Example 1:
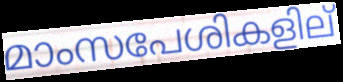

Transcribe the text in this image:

മാംസപേശികളില്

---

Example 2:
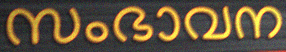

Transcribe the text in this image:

സംഭാവന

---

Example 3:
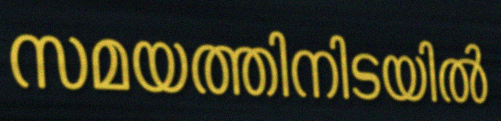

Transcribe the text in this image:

സമയത്തിനിടയിൽ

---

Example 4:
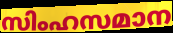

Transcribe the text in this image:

സിംഹസമാന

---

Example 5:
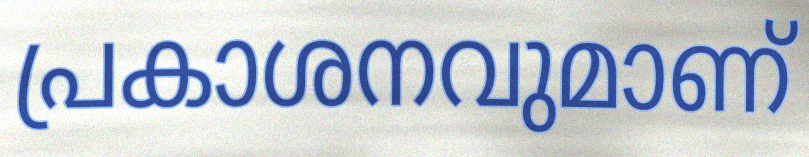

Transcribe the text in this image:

പ്രകാശനവുമാണ്